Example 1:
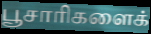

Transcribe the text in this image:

பூசாரிகளைக்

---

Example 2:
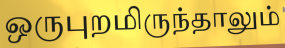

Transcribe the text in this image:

ஒருபுறமிருந்தாலும்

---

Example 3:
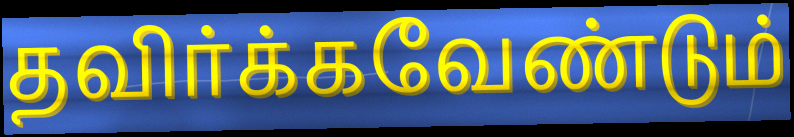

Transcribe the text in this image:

தவிர்க்கவேண்டும்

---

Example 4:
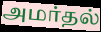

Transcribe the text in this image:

அமர்தல்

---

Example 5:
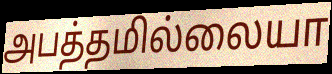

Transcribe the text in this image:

அபத்தமில்லையா